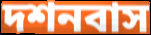
দশনবাস